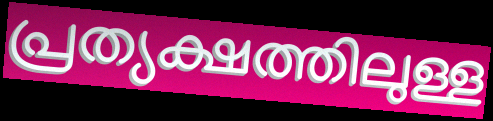
പ്രത്യക്ഷത്തിലുള്ള